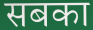
सबका